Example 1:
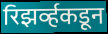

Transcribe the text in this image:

रिझर्व्हकडून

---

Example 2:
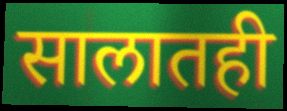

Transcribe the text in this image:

सालातही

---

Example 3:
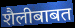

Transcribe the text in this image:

शैलीबाबत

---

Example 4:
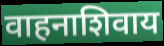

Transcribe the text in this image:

वाहनाशिवाय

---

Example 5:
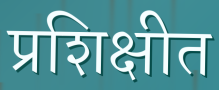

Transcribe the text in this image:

प्रशिक्षीत